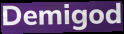
Demigod